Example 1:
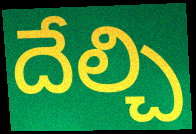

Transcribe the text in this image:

దేల్చి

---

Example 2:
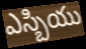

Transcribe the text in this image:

ఎస్బియు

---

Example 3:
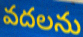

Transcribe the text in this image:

వదలను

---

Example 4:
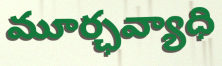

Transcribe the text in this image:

మూర్ఛవ్యాధి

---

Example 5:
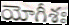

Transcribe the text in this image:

యోగీశః